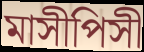
মাসীপিসী